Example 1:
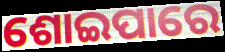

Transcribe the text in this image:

ଶୋଇପାରେ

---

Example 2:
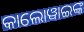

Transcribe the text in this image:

କାଲୋୱାଇଙ୍କ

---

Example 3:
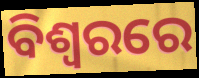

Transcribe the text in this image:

ବିଶ୍ବରରେ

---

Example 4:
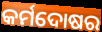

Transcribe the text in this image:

କର୍ମଦୋଷର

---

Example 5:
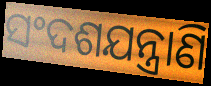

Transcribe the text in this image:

ସଂଦଶଯନ୍ତ୍ରାଣି